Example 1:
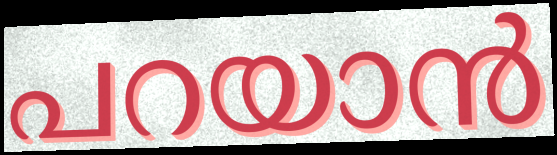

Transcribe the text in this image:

പറയാൻ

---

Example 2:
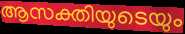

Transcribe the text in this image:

ആസക്തിയുടെയും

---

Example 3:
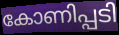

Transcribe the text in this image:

കോണിപ്പടി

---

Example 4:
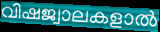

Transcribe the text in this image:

വിഷജ്വാലകളാൽ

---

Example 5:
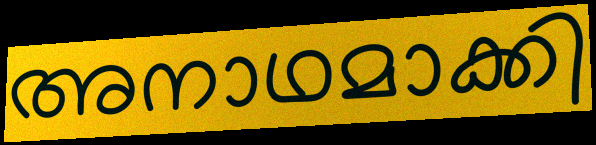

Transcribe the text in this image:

അനാഥമാക്കി